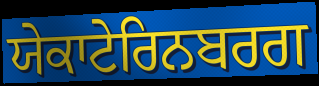
ਯੇਕਾਟੇਰਿਨਬਰਗ